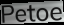
Petoe